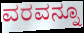
ವರವನ್ನೂ